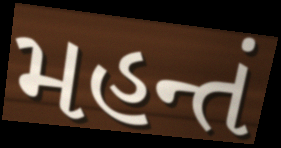
મહન્તં